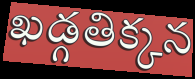
ఖడ్గతిక్కన